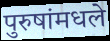
पुरुषांमधले